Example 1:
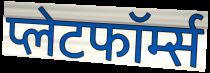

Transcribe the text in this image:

प्लेटफॉर्म्स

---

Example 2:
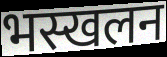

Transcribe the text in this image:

भस्खलन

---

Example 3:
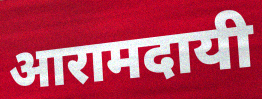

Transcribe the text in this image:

आरामदायी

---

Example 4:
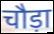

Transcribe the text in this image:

चौड़ा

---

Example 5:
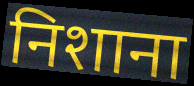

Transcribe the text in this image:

निशाना